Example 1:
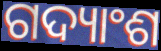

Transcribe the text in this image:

ଗଦ୍ୟାଂଶ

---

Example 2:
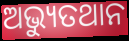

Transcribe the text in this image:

ଅଭ୍ୟୁତଥାନ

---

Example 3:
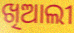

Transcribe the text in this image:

ଖିଆଲୀ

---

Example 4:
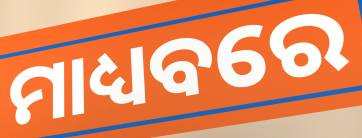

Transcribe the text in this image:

ମାଧ୍ୟବରେ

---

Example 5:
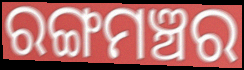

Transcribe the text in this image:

ରଙ୍ଗମଞ୍ଚର